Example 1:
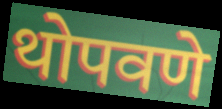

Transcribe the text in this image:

थोपवणे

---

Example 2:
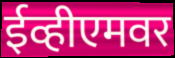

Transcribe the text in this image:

ईव्हीएमवर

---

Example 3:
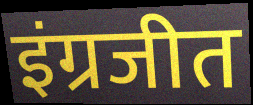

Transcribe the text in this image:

इंग्रजीत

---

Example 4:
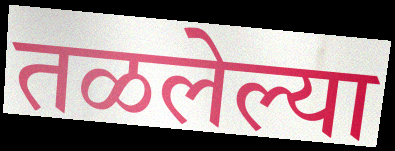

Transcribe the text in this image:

तळलेल्या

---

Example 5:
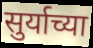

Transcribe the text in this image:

सुर्याच्या